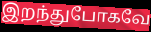
இறந்துபோகவே